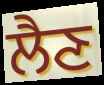
ਲੈਣ